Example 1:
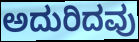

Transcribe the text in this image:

ಅದುರಿದವು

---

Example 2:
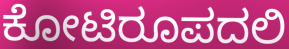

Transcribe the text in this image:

ಕೋಟಿರೂಪದಲಿ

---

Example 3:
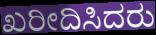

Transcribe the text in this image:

ಖರೀದಿಸಿದರು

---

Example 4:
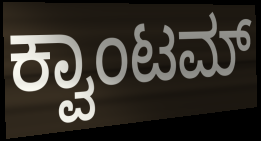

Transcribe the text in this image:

ಕ್ವಾಂಟಮ್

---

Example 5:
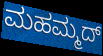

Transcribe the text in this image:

ಮಹಮ್ಮದ್